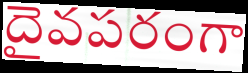
దైవపరంగా